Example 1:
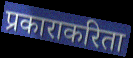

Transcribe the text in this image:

प्रकाराकरिता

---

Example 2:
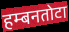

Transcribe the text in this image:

हम्बनतोटा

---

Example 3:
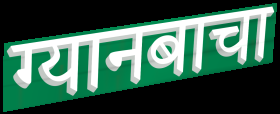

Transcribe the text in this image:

ग्यानबाचा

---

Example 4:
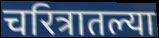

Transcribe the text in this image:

चरित्रातल्या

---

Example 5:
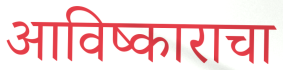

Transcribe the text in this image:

आविष्काराचा